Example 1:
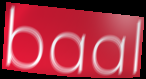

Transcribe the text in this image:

baal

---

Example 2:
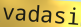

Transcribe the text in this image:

vadasi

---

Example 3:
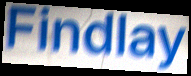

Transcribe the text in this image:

Findlay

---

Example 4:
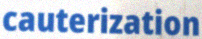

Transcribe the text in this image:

cauterization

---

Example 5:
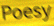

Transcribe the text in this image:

Poesy